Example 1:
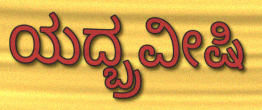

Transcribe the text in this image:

ಯದ್ಬ್ರವೀಷಿ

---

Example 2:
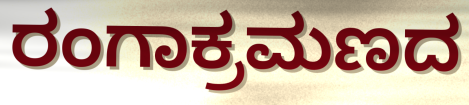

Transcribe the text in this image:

ರಂಗಾಕ್ರಮಣದ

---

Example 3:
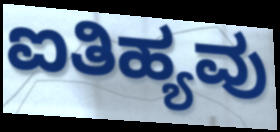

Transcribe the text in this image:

ಐತಿಹ್ಯವು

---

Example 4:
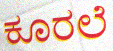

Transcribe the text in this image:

ಕೂರಲೆ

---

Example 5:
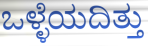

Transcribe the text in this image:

ಒಳ್ಳೆಯದಿತ್ತು